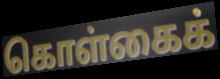
கொள்கைக்